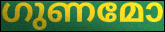
ഗുണമോ